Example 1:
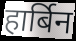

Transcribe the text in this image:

हार्बिन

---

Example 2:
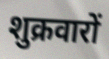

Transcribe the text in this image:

शुक्रवारों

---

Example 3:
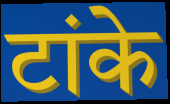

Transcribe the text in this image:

टांके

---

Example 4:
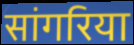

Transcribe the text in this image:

सांगरिया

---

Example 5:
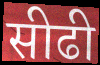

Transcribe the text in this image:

सीढी